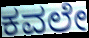
ಕವಲೇ